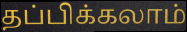
தப்பிக்கலாம்